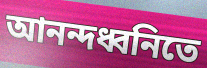
আনন্দধ্বনিতে